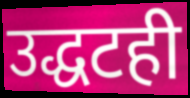
उद्धटही